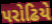
પરોઢિયે